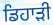
ਡਿਹਾੜੀ